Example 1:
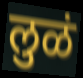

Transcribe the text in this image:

लुळं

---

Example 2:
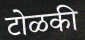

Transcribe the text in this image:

टोळकी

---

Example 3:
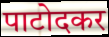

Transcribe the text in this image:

पाटोदकर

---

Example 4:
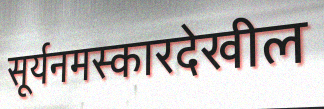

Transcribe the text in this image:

सूर्यनमस्कारदेखील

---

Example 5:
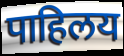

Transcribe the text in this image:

पाहिलय